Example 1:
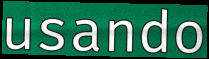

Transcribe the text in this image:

usando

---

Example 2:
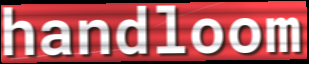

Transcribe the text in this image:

handloom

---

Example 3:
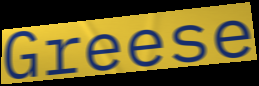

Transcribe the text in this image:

Greese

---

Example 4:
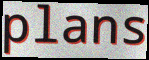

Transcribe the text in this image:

plans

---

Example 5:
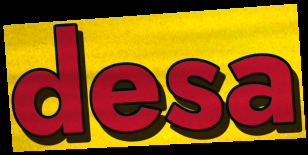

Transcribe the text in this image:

desa